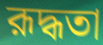
রূদ্ধতা